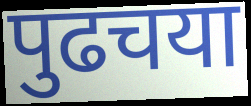
पुढचया